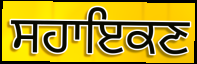
ਸਹਾਇਕਣ